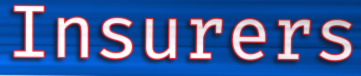
Insurers